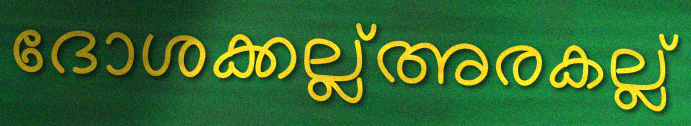
ദോശക്കല്ല്അരകല്ല്